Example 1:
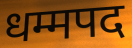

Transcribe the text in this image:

धम्मपद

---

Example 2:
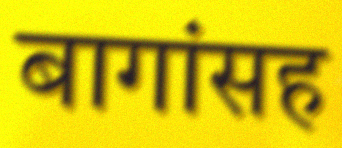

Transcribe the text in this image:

बागांसह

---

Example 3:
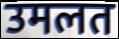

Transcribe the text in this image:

उमलत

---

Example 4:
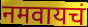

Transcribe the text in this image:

नमवायचं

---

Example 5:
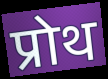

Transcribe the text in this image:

प्रोथ